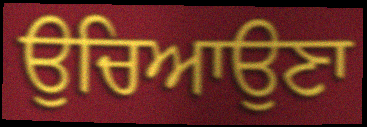
ਉਚਿਆਉਣਾ